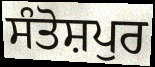
ਸੰਤੋਸ਼ਪੁਰ